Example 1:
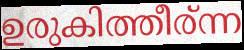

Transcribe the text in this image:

ഉരുകിത്തീര്ന്ന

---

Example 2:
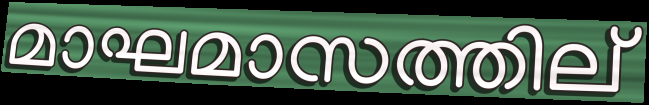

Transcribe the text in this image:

മാഘമാസത്തില്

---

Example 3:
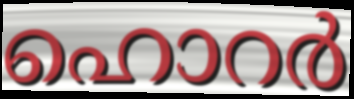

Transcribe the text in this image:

ഹൊറർ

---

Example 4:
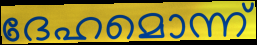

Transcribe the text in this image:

ദേഹമൊന്ന്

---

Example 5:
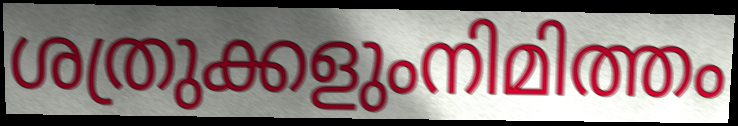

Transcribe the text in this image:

ശത്രുക്കളുംനിമിത്തം